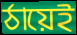
ঠায়েই